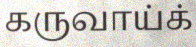
கருவாய்க்